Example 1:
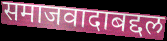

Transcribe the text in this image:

समाजवादाबद्दल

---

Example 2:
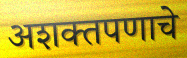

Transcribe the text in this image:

अशक्तपणाचे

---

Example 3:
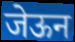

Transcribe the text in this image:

जेऊन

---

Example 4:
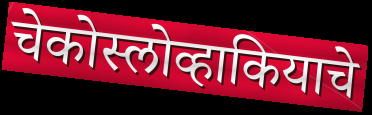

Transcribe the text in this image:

चेकोस्लोव्हाकियाचे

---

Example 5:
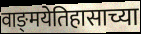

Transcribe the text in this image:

वाङ्‌मयेतिहासाच्या